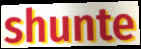
shunte